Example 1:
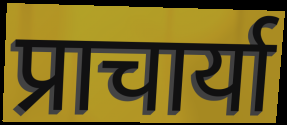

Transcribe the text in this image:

प्राचार्या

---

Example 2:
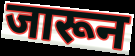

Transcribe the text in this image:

जारून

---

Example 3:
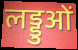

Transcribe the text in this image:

लड्डुओं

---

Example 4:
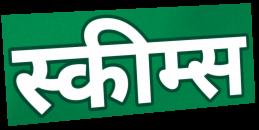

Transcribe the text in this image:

स्कीम्स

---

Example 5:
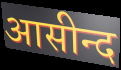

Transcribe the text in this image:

आसीन्द